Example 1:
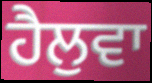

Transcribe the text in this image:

ਹੈਲੁਵਾ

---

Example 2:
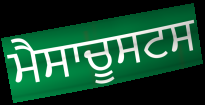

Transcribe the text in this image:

ਮੈਸਾਚੂਸਟਸ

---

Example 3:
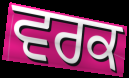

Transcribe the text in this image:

ਵਰਕ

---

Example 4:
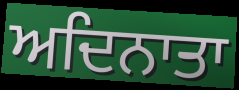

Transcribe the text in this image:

ਅਦਿਨਾਤਾ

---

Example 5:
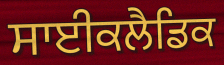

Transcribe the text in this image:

ਸਾਈਕਲੈਡਿਕ